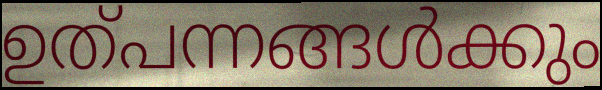
ഉത്പന്നങ്ങൾക്കും